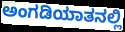
ಅಂಗಡಿಯಾತನಲ್ಲಿ